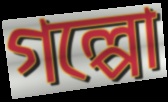
গল্পো